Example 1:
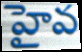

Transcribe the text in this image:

హైవ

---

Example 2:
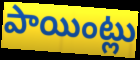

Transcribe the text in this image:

పాయింట్లు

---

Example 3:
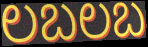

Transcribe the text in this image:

లబలబ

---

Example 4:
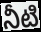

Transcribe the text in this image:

నీటి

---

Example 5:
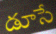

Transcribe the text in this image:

డూసే